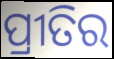
ପ୍ରୀତିର